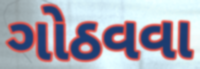
ગોઠવવા